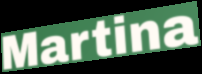
Martina